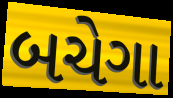
બચેગા